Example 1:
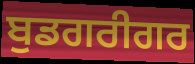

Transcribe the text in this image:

ਬੁਡਗਰੀਗਰ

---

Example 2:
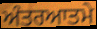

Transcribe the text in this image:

ਅੰਤਰਆਤਮੇ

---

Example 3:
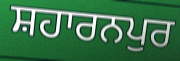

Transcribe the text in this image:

ਸ਼ਹਾਰਨਪੁਰ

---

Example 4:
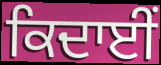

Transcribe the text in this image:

ਕਿਦਾਈਂ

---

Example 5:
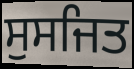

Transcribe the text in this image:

ਸੁਸਜਿਤ